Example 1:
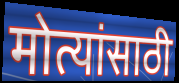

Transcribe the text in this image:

मोत्यांसाठी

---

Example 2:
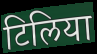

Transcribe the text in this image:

टिलिया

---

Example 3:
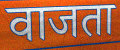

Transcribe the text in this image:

वाजता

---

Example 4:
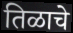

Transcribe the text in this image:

तिळाचे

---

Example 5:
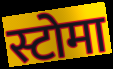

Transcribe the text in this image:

स्टोमा